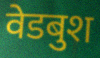
वेडबुश